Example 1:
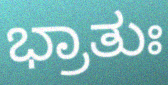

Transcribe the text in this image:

ಭ್ರಾತುಃ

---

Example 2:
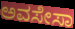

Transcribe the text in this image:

ಅವಸೇಸಾ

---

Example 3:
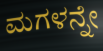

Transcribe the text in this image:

ಮಗಳನ್ನೇ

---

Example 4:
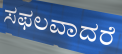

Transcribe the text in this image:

ಸಫಲವಾದರೆ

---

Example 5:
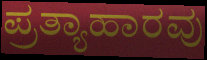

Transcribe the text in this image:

ಪ್ರತ್ಯಾಹಾರವು